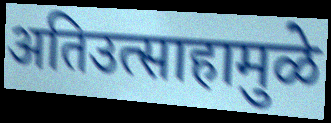
अतिउत्साहामुळे